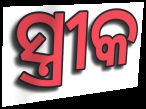
ସ୍ତ୍ରୀକ